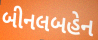
બીનલબહેન